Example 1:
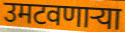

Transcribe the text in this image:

उमटवणार्‍या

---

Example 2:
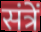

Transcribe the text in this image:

संत्रें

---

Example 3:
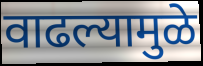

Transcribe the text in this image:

वाढल्यामुळे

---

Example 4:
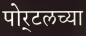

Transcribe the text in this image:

पोर्टलच्या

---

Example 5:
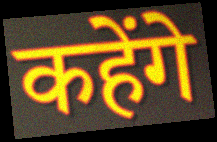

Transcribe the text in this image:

कहेंगे